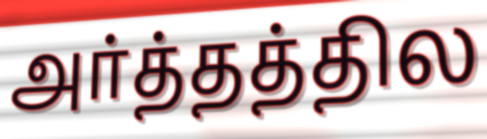
அர்த்தத்தில